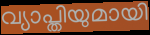
വ്യാപ്തിയുമായി